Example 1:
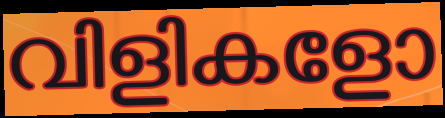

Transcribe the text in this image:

വിളികളോ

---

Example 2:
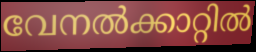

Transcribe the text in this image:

വേനൽക്കാറ്റിൽ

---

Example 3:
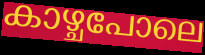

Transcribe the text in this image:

കാഴ്ചപോലെ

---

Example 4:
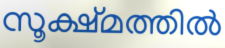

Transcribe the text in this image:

സൂക്ഷ്മത്തിൽ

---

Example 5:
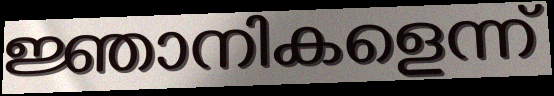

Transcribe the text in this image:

ജ്ഞാനികളെന്ന്